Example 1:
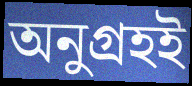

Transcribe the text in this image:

অনুগ্রহই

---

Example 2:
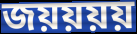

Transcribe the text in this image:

জয়য়য়য়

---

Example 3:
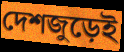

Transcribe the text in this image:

দেশজুড়েই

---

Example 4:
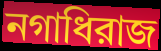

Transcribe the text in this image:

নগাধিরাজ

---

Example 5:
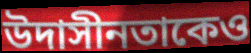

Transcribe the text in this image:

উদাসীনতাকেও